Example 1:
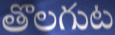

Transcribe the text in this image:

తొలగుట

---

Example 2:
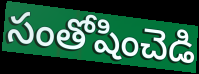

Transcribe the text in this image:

సంతోషించెడి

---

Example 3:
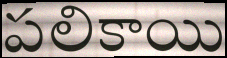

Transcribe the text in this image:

పలికాయి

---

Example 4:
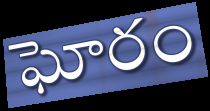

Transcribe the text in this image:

ఘోరం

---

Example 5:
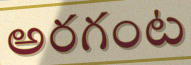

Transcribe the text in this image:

అరగంట